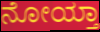
ನೋಯ್ತಾ